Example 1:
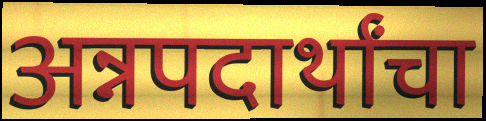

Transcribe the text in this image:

अन्नपदार्थांचा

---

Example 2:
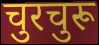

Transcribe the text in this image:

चुरचुरू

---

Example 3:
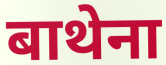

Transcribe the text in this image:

बाथेना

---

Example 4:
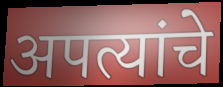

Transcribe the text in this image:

अपत्यांचे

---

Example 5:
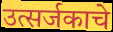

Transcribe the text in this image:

उत्सर्जकाचे